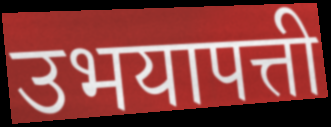
उभयापत्ती